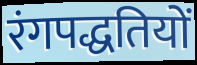
रंगपद्धतियों